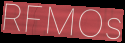
RFMOs